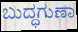
ಬುದ್ಧಗುಣಾ